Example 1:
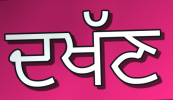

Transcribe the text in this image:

ਦਖੱਣ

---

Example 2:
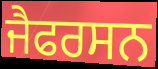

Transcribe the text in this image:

ਜੈਫਰਸਨ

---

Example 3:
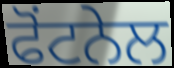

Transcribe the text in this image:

ਫੋਂਟਨੇਲ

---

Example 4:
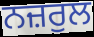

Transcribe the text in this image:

ਨਜ਼ਰੁਲ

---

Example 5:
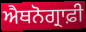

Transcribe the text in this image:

ਐਥਨੋਗ੍ਰਾਫ਼ੀ